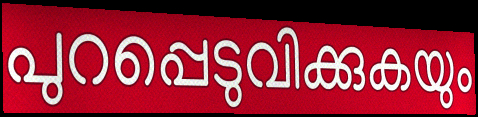
പുറപ്പെടുവിക്കുകയും